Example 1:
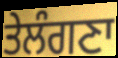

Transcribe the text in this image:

ਤੇਲੰਗਣਾ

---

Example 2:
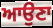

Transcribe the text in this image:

ਆਉਣਾ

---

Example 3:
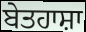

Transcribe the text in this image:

ਬੇਤਹਾਸ਼ਾ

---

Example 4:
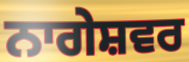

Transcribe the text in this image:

ਨਾਗੇਸ਼ਵਰ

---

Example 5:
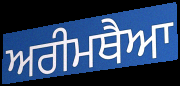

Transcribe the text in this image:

ਅਰੀਮਥੈਆ